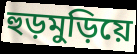
হুড়মুড়িয়ে